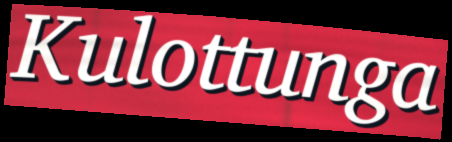
Kulottunga